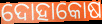
ଦୋହାକୋଷ